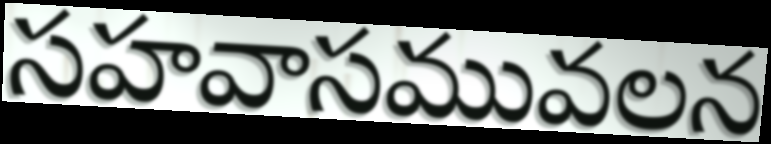
సహవాసమువలన